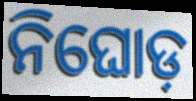
ନିଘୋଡ଼